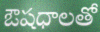
ఔషధాలతో